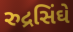
રુદ્રસિંઘે